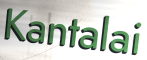
Kantalai